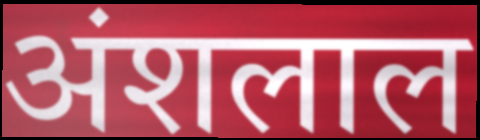
अंशलाल